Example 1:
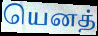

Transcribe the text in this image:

யெனத்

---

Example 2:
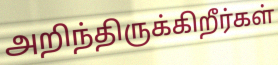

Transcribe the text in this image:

அறிந்திருக்கிறீர்கள்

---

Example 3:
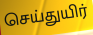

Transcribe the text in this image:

செய்துயிர்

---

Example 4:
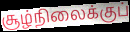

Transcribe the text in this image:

சூழ்நிலைக்குப்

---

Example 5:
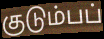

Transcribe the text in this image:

குடும்பப்